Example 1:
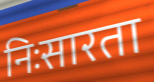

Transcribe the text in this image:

निःसारता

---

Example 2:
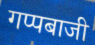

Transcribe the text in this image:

गप्पबाजी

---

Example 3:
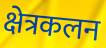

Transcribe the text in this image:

क्षेत्रकलन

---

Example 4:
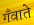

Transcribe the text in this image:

गँवाते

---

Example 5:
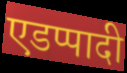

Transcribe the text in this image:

एडप्पादी